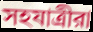
সহযাত্রীরা